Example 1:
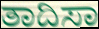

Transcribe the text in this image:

ತಾದಿಸಾ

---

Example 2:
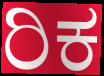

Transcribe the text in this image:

ರಿಕ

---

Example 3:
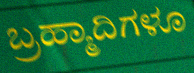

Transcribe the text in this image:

ಬ್ರಹ್ಮಾದಿಗಳೂ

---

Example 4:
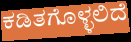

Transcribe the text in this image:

ಕಡಿತಗೊಳ್ಳಲಿದೆ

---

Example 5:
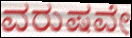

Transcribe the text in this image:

ವರುಷವೇ